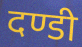
दण्डी